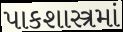
પાકશાસ્ત્રમાં